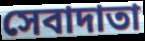
সেবাদাতা